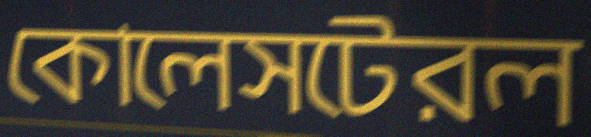
কোলেসটেরল